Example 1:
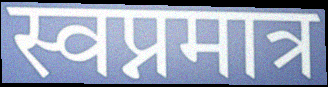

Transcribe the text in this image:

स्वप्नमात्र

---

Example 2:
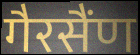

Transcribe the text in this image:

गैरसैंण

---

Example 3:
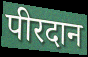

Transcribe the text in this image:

पीरदान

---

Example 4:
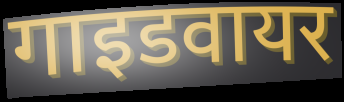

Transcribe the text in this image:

गाइडवायर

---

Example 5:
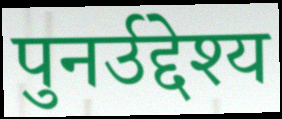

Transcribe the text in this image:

पुनर्उद्देश्य